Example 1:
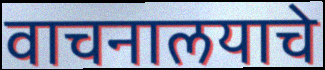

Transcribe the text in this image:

वाचनालयाचे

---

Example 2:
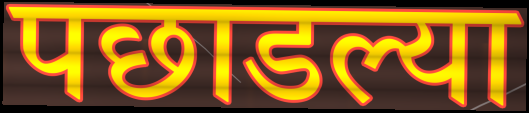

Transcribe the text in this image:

पछाडल्या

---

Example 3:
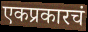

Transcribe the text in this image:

एकप्रकारचं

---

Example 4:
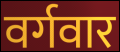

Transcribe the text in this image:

वर्गवार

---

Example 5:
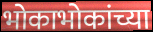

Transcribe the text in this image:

भोकाभोकांच्या